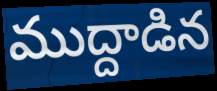
ముద్దాడిన